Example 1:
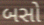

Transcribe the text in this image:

બસો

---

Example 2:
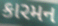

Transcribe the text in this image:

કારમન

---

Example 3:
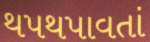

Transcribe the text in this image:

થપથપાવતાં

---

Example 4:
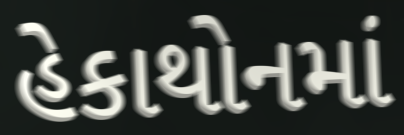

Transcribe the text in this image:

હેકાથોનમાં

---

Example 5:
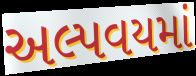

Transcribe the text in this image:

અલ્પવયમાં